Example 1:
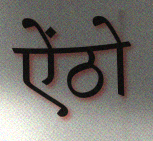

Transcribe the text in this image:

ऐंठो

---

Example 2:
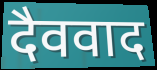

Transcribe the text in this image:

दैववाद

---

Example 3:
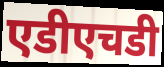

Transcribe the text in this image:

एडीएचडी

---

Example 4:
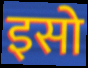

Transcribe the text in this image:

इसो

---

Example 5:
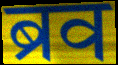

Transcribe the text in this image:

ब्रव